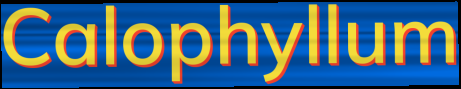
Calophyllum